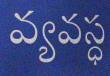
వ్యవస్ధ